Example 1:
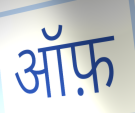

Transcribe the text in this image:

ऑफ़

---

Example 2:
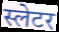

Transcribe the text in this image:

स्लेटर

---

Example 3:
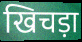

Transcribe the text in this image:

खिचड़ा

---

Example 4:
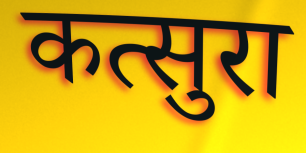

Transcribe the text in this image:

कत्सुरा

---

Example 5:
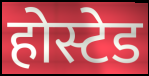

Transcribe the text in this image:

होस्टेड